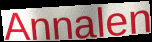
Annalen